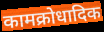
कामक्रोधादिक